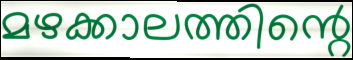
മഴക്കാലത്തിന്റെ